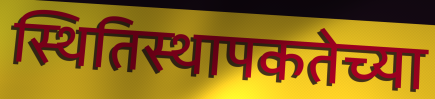
स्थितिस्थापकतेच्या